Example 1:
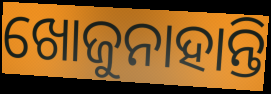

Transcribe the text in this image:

ଖୋଜୁନାହାନ୍ତି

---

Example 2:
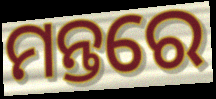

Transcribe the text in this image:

ମନ୍ତରେ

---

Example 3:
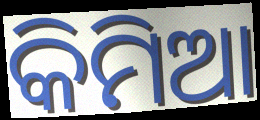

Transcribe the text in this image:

କିମିଆ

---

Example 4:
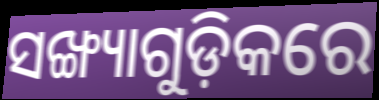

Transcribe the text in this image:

ସଙ୍ଖ୍ୟାଗୁଡ଼ିକରେ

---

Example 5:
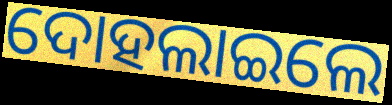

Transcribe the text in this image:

ଦୋହଲାଇଲେ